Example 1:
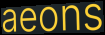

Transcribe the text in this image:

aeons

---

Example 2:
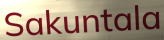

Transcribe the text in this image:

Sakuntala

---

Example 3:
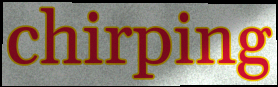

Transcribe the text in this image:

chirping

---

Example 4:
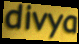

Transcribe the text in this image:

divya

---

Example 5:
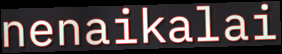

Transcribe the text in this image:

nenaikalai